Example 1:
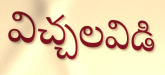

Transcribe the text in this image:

విచ్చలవిడి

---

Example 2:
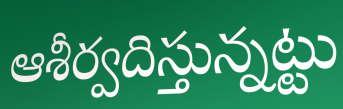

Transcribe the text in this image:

ఆశీర్వదిస్తున్నట్టు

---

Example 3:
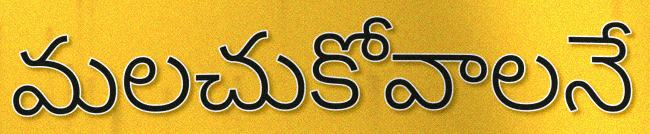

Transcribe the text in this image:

మలచుకోవాలనే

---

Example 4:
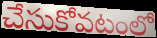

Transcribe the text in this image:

చేసుకోవటంలో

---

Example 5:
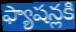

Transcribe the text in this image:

ఫ్యాషన్లకి